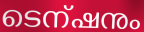
ടെന്ഷനും